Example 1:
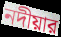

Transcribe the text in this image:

নদীয়ার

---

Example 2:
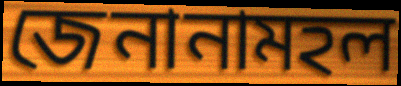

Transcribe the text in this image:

জেনানামহল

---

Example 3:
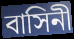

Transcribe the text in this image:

বাসিনী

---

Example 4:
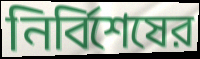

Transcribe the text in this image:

নির্বিশেষের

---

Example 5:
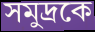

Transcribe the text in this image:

সমুদ্রকে